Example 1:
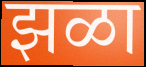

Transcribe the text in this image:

झळा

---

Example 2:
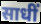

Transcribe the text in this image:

साधीं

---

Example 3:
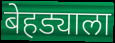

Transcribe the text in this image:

बेहड्याला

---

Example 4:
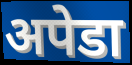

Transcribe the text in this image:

अपेडा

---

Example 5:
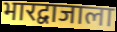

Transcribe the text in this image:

भारद्वाजाला